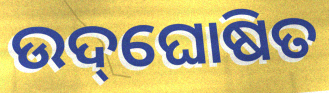
ଉଦ୍‌ଘୋଷିତ